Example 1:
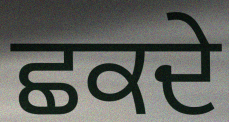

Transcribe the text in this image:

ਛਕਦੇ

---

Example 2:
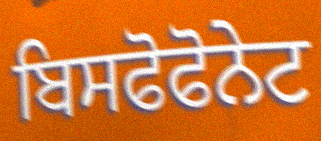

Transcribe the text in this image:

ਬਿਸਫੋਫੋਨੇਟ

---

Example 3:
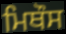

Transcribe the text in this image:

ਮਿਥੌਸ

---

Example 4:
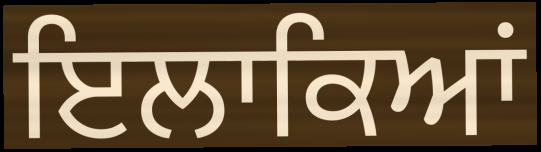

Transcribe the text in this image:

ਇਲਾਕਿਆਂ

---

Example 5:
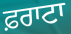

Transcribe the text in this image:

ਫ਼ਰਾਟਾ